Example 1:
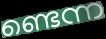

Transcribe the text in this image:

ണ്ടെന്ന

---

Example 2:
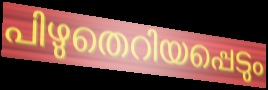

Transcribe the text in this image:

പിഴുതെറിയപ്പെടും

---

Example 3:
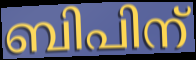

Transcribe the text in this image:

ബിപിന്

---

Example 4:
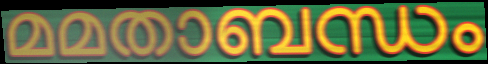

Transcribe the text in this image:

മമതാബന്ധം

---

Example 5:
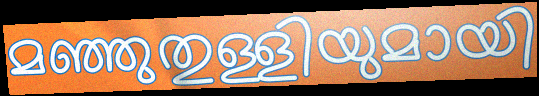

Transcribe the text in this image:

മഞ്ഞുതുള്ളിയുമായി